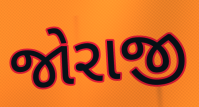
જોરાજી